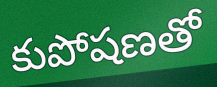
కుపోషణతో